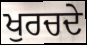
ਖੁਰਚਦੇ